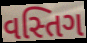
વસ્તિગ